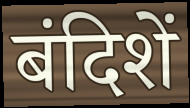
बंदिशें